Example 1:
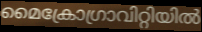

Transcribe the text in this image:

മൈക്രോഗ്രാവിറ്റിയിൽ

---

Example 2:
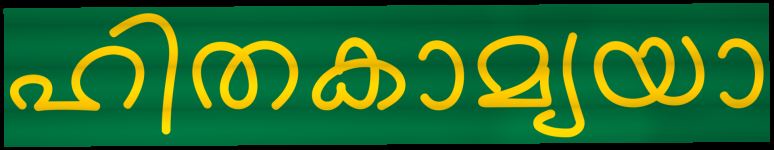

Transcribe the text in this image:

ഹിതകാമ്യയാ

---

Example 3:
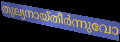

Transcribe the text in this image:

തുല്യനായ്തീർന്നുവോ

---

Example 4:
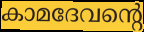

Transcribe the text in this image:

കാമദേവന്റെ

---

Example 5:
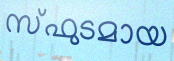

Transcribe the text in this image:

സ്ഫുടമായ